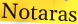
Notaras